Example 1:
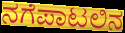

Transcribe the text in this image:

ನಗೆಪಾಟಲಿನ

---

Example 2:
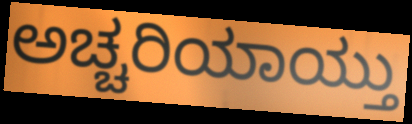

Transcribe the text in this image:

ಅಚ್ಚರಿಯಾಯ್ತು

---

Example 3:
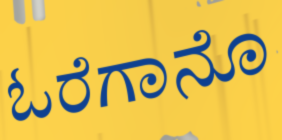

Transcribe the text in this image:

ಓರೆಗಾನೊ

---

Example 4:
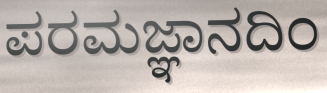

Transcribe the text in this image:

ಪರಮಜ್ಞಾನದಿಂ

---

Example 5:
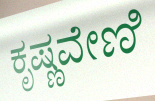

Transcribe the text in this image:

ಕೃಷ್ಣವೇಣಿ